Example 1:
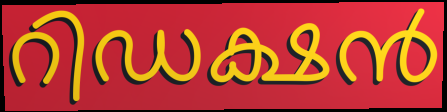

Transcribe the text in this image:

റിഡക്ഷൻ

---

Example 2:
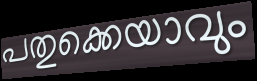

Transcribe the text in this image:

പതുക്കെയാവും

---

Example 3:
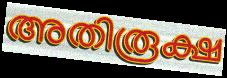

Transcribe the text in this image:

അതിരൂക്ഷ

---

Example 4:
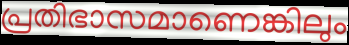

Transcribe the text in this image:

പ്രതിഭാസമാണെങ്കിലും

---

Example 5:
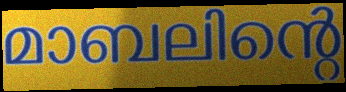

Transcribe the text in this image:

മാബലിന്റെ